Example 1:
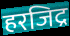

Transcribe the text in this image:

हरजिद्र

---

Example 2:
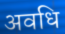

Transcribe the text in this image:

अवधि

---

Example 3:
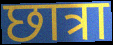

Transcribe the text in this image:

छात्रा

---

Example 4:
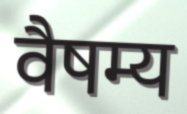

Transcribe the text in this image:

वैषम्य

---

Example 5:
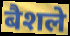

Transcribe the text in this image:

बैशले